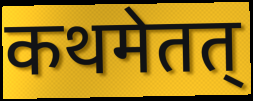
कथमेतत्